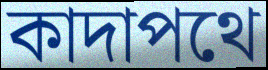
কাদাপথে